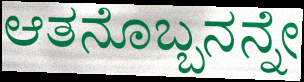
ಆತನೊಬ್ಬನನ್ನೇ